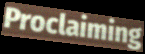
Proclaiming